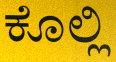
ಕೊಲ್ಲಿ